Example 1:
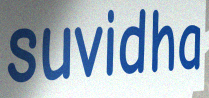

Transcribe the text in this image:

suvidha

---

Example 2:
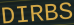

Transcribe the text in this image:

DIRBS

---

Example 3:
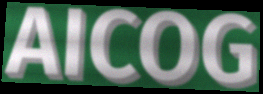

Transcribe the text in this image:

AICOG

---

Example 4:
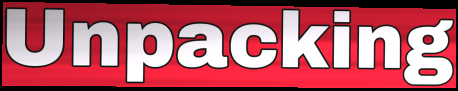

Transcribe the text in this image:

Unpacking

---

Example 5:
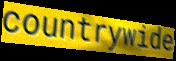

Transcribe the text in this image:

countrywide